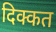
दिक्कत